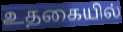
உதகையில்